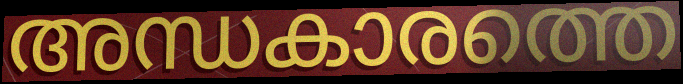
അന്ധകാരത്തെ